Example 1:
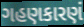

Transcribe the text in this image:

ગહણકારણં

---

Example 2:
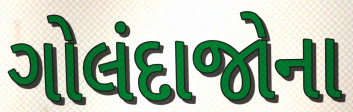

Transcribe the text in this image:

ગોલંદાજોના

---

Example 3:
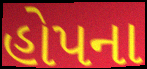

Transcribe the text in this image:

હોપના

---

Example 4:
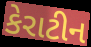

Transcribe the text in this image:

કેરાટીન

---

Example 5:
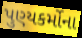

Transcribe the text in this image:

પુણ્યકર્મોના